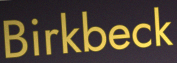
Birkbeck